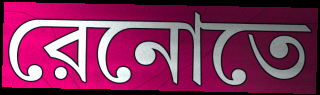
রেনোতে